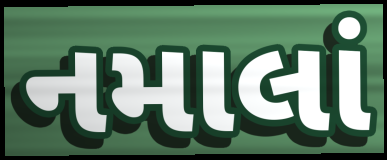
નમાલાં